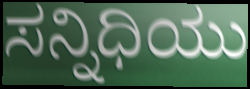
ಸನ್ನಿಧಿಯು